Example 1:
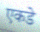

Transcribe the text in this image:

एकडे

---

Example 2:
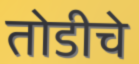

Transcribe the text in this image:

तोडीचे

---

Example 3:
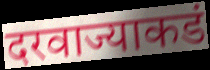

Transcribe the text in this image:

दरवाज्याकडं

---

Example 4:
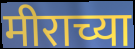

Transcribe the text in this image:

मीराच्या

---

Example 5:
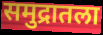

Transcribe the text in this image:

समुद्रातला